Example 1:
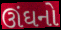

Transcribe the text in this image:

ઊંઘનો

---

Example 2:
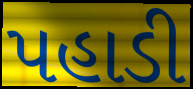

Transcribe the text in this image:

પહાડી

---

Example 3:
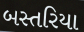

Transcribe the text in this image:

બસ્તરિયા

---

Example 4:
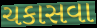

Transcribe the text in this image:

ચકાસવા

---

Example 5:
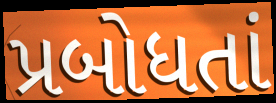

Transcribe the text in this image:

પ્રબોધતાં